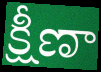
క్షీణా